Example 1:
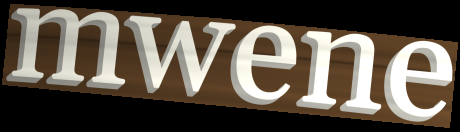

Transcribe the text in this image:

mwene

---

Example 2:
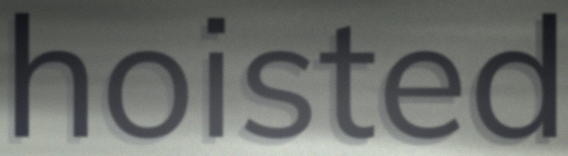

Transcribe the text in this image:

hoisted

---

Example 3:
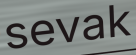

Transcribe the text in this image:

sevak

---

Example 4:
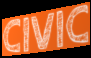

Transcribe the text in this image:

CIVIC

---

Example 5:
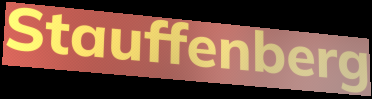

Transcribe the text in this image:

Stauffenberg